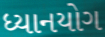
ધ્યાનયોગ